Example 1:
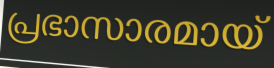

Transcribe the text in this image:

പ്രഭാസാരമായ്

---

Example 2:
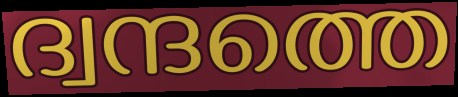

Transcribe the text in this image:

ദ്വന്ദത്തെ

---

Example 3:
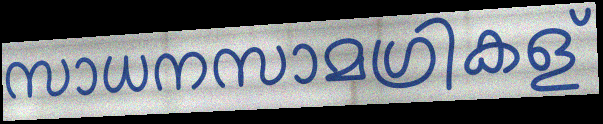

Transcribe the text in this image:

സാധനസാമഗ്രികള്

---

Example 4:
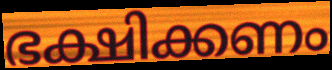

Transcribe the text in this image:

ഭക്ഷിക്കണം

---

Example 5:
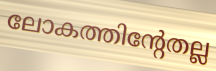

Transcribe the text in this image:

ലോകത്തിന്റേതല്ല